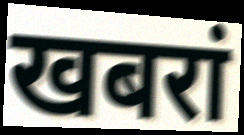
खबरां